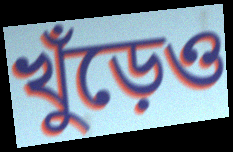
খুঁড়েও